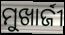
ମୁଖାର୍ଜୀ